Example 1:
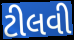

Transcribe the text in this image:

ટીલવી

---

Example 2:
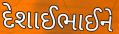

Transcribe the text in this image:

દેશાઈભાઈને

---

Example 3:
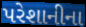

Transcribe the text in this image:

પરેશાનીના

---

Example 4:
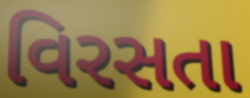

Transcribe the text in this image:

વિરસતા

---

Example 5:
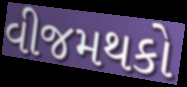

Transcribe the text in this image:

વીજમથકો